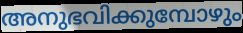
അനുഭവിക്കുമ്പോഴും